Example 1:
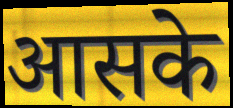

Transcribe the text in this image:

आसके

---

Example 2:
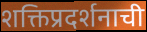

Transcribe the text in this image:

शक्तिप्रदर्शनाची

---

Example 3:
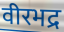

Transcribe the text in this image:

वीरभद्र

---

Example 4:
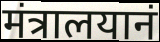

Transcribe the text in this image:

मंत्रालयानं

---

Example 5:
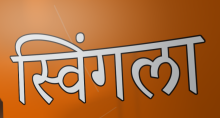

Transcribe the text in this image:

स्विंगला